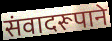
संवादरूपाने